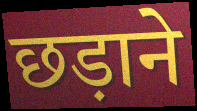
छड़ाने